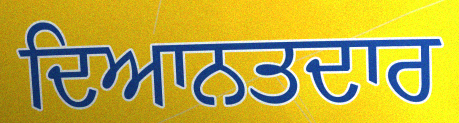
ਦਿਆਨਤਦਾਰ